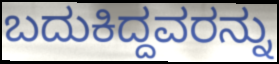
ಬದುಕಿದ್ದವರನ್ನು